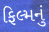
ફિલ્મનું